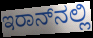
ಇರಾನ್‌ನಲ್ಲಿ